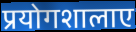
प्रयोगशालाए